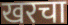
खरचा